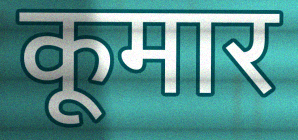
कूमार